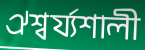
ঐশ্বর্য্যশালী